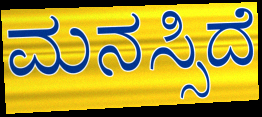
ಮನಸ್ಸಿದೆ